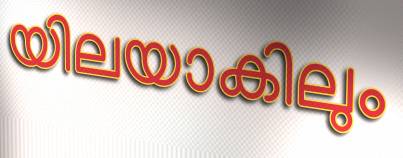
യിലയാകിലും